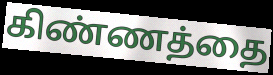
கிண்ணத்தை